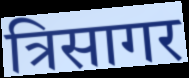
त्रिसागर